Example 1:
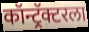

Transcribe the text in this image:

कॉन्ट्रॅक्टरला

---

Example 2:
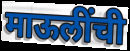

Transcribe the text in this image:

माऊलींची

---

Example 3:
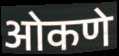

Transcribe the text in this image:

ओकणे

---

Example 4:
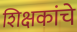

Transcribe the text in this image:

शिक्षकांचे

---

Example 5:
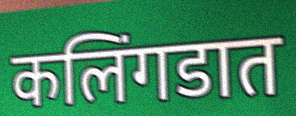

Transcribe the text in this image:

कलिंगडात